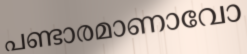
പണ്ടാരമാണാവോ